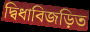
দ্বিধাবিজড়িত